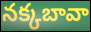
నక్కబావా